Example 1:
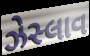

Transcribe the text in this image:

ઝેસ્લાવ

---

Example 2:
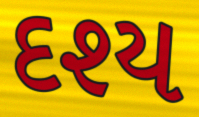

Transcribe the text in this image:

દશ્ય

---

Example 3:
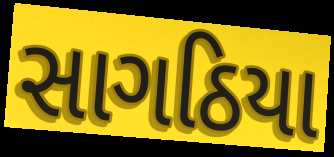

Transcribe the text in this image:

સાગઠિયા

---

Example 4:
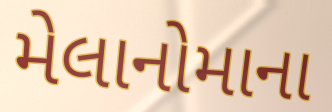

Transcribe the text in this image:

મેલાનોમાના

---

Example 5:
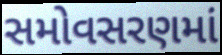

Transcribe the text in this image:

સમોવસરણમાં